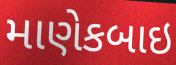
માણેકબાઇ